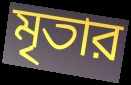
মৃতার